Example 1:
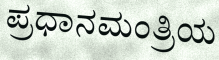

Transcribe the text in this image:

ಪ್ರಧಾನಮಂತ್ರಿಯ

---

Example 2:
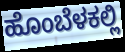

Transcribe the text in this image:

ಹೊಂಬೆಳಕಲ್ಲಿ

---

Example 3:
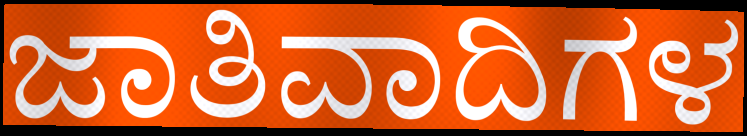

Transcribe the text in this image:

ಜಾತಿವಾದಿಗಳ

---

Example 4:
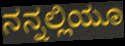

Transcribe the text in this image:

ನನ್ನಲ್ಲಿಯೂ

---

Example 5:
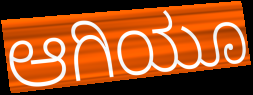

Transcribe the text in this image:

ಆಗಿಯೂ